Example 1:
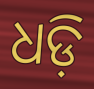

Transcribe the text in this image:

ଧଡ଼ି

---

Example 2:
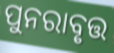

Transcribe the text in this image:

ପୁନରାବୃତ୍ତ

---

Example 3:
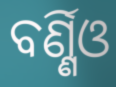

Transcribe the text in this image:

ବର୍ଣ୍ଣିଓ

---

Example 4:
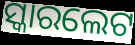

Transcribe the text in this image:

ସ୍କାରଲେଟ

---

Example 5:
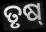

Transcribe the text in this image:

ତୃଷ୍